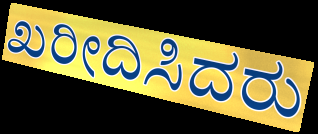
ಖರೀದಿಸಿದರು